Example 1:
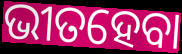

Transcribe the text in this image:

ଭୀତହେବା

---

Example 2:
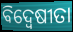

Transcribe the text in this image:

ବିଦ୍ଵେଷୀତା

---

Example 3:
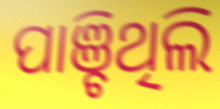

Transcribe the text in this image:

ପାଞ୍ଚିଥିଲି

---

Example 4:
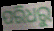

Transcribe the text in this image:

ପରିଧରୁ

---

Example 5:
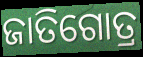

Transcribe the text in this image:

ଜାତିଗୋତ୍ର